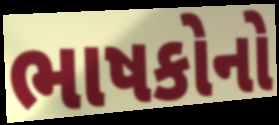
ભાષકોનો